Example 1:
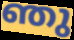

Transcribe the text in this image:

ഞു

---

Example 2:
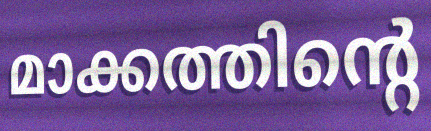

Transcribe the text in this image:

മാക്കത്തിന്റെ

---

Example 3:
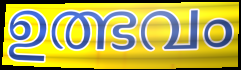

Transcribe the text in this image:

ഉത്ഭവം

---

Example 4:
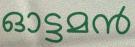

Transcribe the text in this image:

ഓട്ടമൻ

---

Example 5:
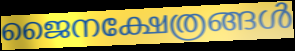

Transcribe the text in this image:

ജൈനക്ഷേത്രങ്ങൾ